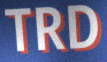
TRD